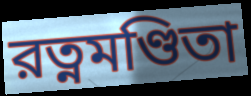
রত্নমণ্ডিতা